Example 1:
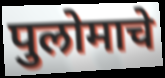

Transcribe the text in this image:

पुलोमाचे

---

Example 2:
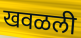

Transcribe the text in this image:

खवळली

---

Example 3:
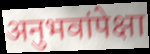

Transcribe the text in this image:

अनुभवांपेक्षा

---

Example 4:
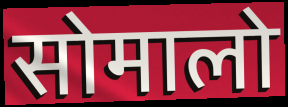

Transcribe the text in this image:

सोमालो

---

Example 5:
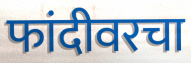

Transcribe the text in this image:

फांदीवरचा